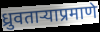
ध्रुवताऱ्याप्रमाणे